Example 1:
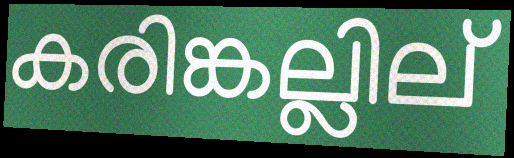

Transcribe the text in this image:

കരിങ്കല്ലില്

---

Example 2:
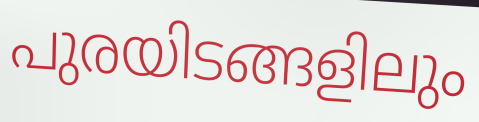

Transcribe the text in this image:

പുരയിടങ്ങളിലും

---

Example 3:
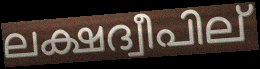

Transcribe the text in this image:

ലക്ഷദ്വീപില്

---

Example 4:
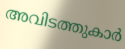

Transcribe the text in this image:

അവിടത്തുകാർ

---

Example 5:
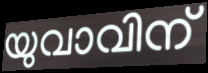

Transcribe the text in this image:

യുവാവിന്